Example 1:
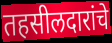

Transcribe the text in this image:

तहसीलदारांचे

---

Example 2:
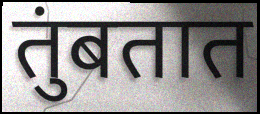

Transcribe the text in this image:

तुंबतात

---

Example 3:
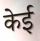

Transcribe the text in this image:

केई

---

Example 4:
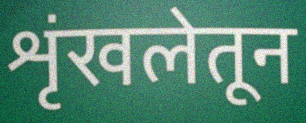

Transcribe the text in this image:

शृंखलेतून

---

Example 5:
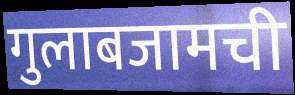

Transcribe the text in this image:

गुलाबजामची